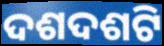
ଦଶଦଶଟି